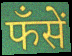
फँसें